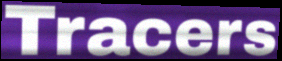
Tracers